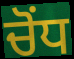
ਚੋਂਧ